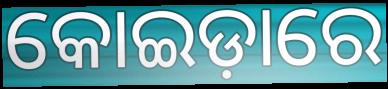
କୋଇଡ଼ାରେ